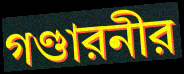
গণ্ডারনীর